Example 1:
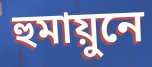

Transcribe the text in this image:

হুমায়ুনে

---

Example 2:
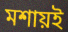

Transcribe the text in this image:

মশায়ই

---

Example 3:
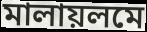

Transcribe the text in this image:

মালায়লমে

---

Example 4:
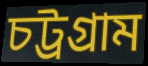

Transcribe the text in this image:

চট্রগ্রাম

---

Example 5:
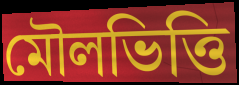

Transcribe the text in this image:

মৌলভিত্তি